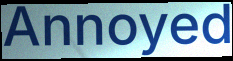
Annoyed